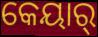
କେୟାର୍